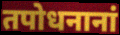
तपोधनानां